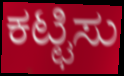
ಕಟ್ಟಿಸು